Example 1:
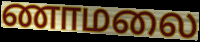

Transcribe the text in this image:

ணாமலை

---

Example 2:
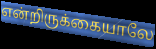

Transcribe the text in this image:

என்றிருக்கையாலே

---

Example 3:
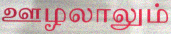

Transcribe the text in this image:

ஊழலாலும்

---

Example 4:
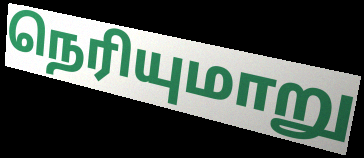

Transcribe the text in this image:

நெரியுமாறு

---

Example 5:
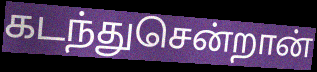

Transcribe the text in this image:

கடந்துசென்றான்